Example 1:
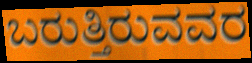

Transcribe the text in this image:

ಬರುತ್ತಿರುವವರ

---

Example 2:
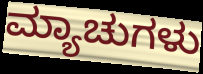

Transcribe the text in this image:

ಮ್ಯಾಚುಗಳು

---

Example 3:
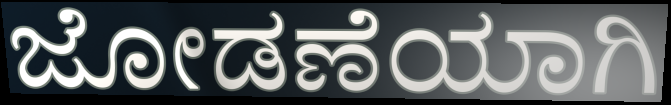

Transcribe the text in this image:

ಜೋಡಣೆಯಾಗಿ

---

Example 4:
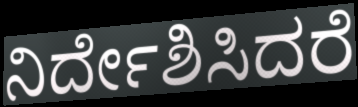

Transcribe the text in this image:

ನಿರ್ದೇಶಿಸಿದರೆ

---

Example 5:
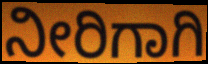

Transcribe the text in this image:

ನೀರಿಗಾಗಿ